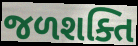
જળશક્તિ